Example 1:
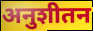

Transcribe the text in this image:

अनुशीतन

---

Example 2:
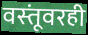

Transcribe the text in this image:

वस्तूंवरही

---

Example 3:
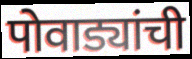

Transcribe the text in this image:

पोवाड्यांची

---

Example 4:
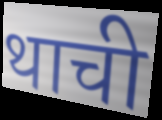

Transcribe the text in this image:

थाची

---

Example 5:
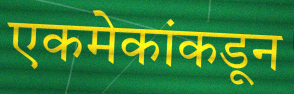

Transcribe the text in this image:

एकमेकांकडून